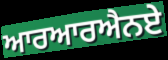
ਆਰਆਰਐਨਏ